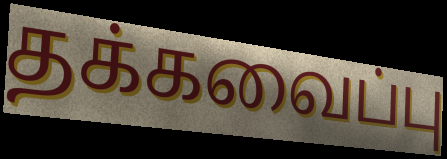
தக்கவைப்பு